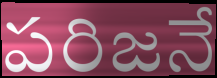
పరిజనే